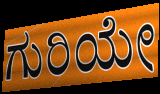
ಗುರಿಯೇ